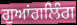
ਗੁਆਂਗਲਿੰਗ